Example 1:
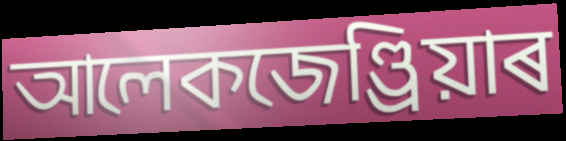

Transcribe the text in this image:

আলেকজেণ্ড্ৰিয়াৰ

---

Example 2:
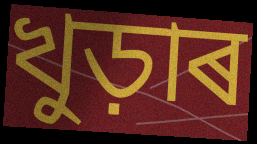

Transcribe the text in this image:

খুড়াৰ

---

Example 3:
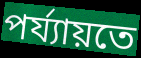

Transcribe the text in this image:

পৰ্য্যায়তে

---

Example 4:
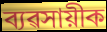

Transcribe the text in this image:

ব্যৱসায়ীক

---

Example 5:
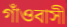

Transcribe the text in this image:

গাঁওবাসী